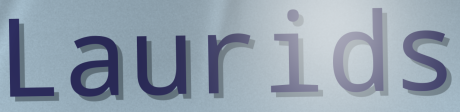
Laurids